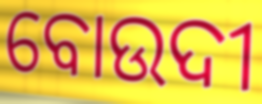
ବୋଉଦୀ